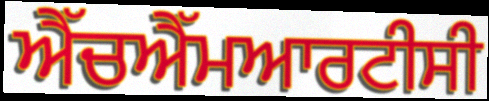
ਐੱਚਐੱਮਆਰਟੀਸੀ